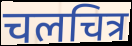
चलचित्र